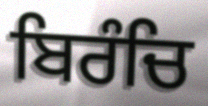
ਬਿਰੰਚਿ